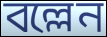
বল্লেন